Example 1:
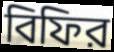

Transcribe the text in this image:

বিফির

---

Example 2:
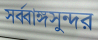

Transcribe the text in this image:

সর্ব্বাঙ্গসুন্দর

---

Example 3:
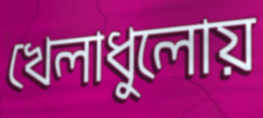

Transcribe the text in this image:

খেলাধুলোয়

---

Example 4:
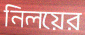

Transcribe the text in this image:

নিলয়ের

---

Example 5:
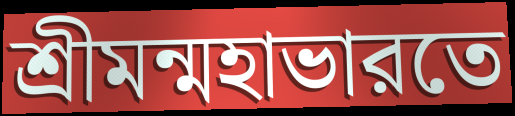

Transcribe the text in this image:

শ্রীমন্মহাভারতে